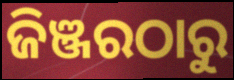
ଜିଞ୍ଜରଠାରୁ